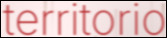
territorio